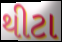
થીટા